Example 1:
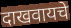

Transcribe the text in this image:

दाखवायचे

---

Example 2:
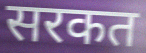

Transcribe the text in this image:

सरकत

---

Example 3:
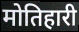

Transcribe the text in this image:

मोतिहारी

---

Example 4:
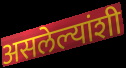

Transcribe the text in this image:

असलेल्यांशी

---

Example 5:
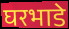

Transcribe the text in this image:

घरभाडे